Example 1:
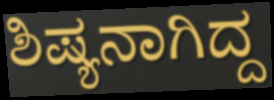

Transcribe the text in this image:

ಶಿಷ್ಯನಾಗಿದ್ದ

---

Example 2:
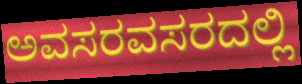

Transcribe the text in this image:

ಅವಸರವಸರದಲ್ಲಿ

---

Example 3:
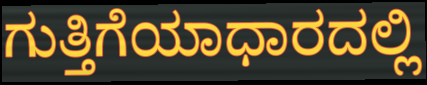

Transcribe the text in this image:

ಗುತ್ತಿಗೆಯಾಧಾರದಲ್ಲಿ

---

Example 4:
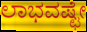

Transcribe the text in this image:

ಲಾಭವಷ್ಟೇ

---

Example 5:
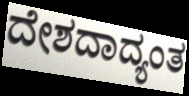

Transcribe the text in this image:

ದೇಶದಾದ್ಯಂತ